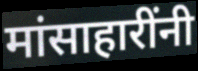
मांसाहारींनी